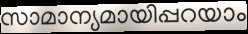
സാമാന്യമായിപ്പറയാം